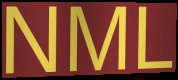
NML